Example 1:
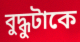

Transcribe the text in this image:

বুদ্ধুটাকে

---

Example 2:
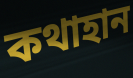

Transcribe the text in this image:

কথাহান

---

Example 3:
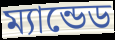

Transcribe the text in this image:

ম্যান্ডেড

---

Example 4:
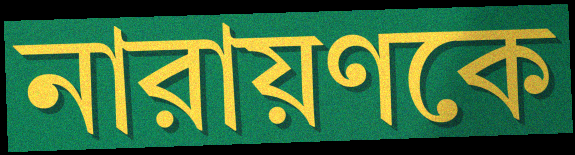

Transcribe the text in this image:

নারায়ণকে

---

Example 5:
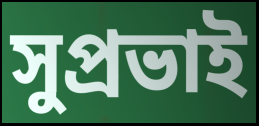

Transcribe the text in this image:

সুপ্রভাই